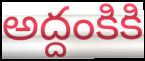
అద్దంకికి